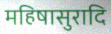
महिषासुरादि